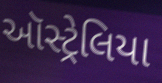
ઑસ્ટ્રેલિયા